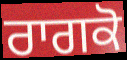
ਰਾਗਕੋ